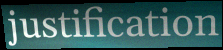
justification